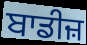
ਬਾਡੀਜ਼